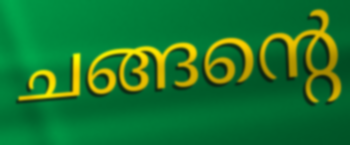
ചങ്ങന്റെ